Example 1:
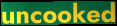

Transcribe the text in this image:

uncooked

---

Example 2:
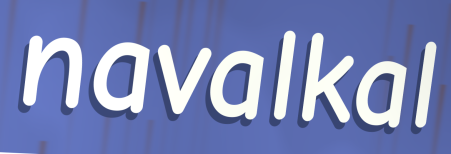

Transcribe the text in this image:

navalkal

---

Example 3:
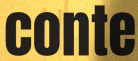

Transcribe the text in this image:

conte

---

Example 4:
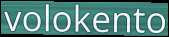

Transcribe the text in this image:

volokento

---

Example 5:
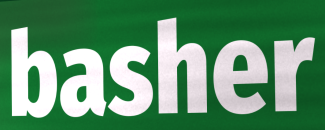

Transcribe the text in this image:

basher